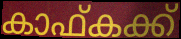
കാഫ്കക്ക്